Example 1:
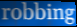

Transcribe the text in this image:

robbing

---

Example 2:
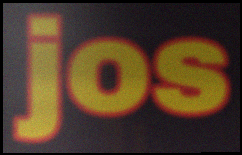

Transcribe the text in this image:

jos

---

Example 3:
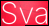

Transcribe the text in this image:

Sva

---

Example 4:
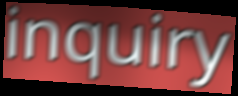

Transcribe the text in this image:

inquiry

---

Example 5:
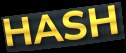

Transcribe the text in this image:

HASH